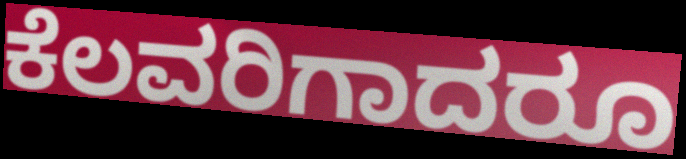
ಕೆಲವರಿಗಾದರೂ